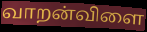
வாறன்விளை